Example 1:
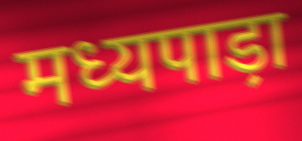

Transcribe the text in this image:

मध्यपाड़ा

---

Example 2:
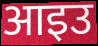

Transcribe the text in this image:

आइउ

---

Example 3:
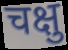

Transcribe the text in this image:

चक्षु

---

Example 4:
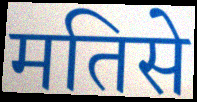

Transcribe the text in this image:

मतिसे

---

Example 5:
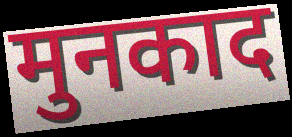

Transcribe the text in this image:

मुनकाद